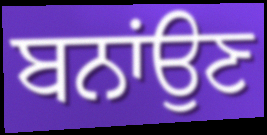
ਬਨਾਂਉਣ